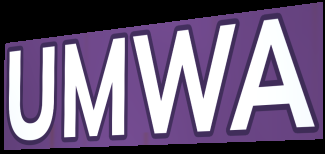
UMWA